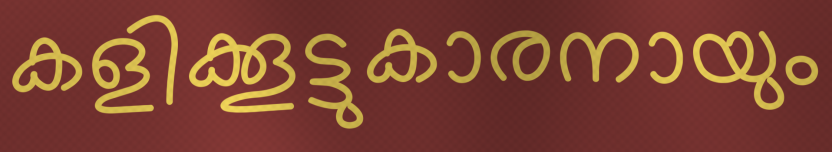
കളിക്കൂട്ടുകാരനായും